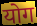
योग